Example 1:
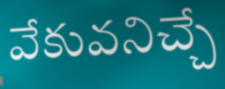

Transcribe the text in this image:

వేకువనిచ్చే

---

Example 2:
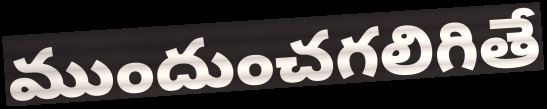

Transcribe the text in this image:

ముందుంచగలిగితే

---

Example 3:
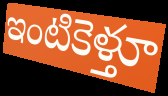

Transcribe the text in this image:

ఇంటికెళ్తూ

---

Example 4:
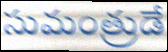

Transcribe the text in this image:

సుమంత్రుడే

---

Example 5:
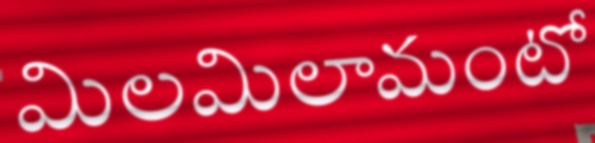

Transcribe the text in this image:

మిలమిలామంటో